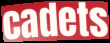
cadets